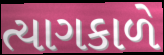
ત્યાગકાળે